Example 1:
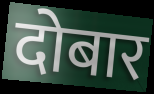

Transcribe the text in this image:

दोबार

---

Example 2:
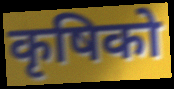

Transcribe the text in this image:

कृषिको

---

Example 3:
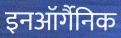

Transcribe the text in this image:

इनऑर्गैनिक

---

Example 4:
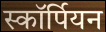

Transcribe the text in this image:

स्कॉर्पियन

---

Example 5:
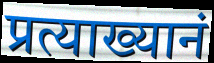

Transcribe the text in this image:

प्रत्याख्यानं